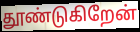
தூண்டுகிறேன்